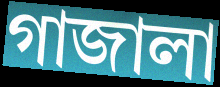
গাজালা